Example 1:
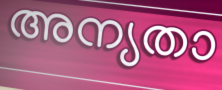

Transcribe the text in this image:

അന്യതാ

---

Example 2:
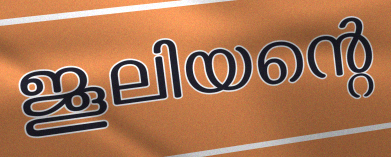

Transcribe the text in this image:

ജൂലിയന്റെ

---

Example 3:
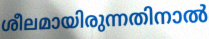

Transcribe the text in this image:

ശീലമായിരുന്നതിനാൽ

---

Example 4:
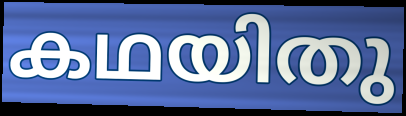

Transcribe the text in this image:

കഥയിതു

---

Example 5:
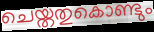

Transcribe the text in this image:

ചെയ്തതുകൊണ്ടും